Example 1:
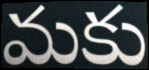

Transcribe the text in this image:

మకు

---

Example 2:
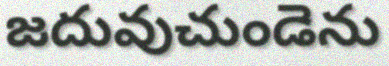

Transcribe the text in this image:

జదువుచుండెను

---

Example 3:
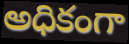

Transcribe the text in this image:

అధికంగా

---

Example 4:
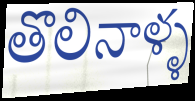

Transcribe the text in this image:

తొలినాళ్ళ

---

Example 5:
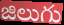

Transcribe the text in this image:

జిలుగు